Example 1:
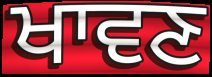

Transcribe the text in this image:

ਖਾਵਣ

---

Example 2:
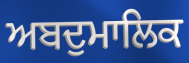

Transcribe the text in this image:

ਅਬਦੁਮਾਲਿਕ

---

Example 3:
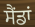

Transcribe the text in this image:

ਸੈਂਡਾਂ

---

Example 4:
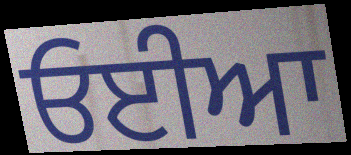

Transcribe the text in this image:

ਓਈਆ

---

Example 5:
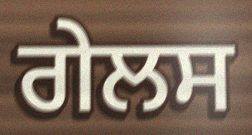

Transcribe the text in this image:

ਗੇਲਸ